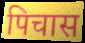
पिचास